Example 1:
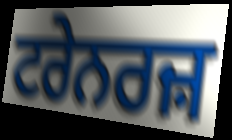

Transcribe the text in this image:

ਟਰੇਨਰਜ਼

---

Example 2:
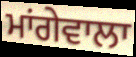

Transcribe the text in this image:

ਮਾਂਗੇਵਾਲਾ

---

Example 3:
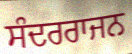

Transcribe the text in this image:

ਸੰਦਰਰਾਜਨ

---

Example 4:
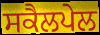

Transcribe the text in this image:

ਸਕੈਲਪੇਲ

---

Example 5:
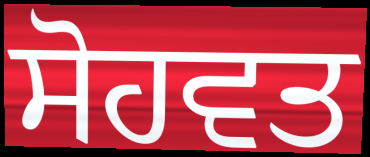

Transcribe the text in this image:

ਸੋਹਵਤ